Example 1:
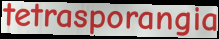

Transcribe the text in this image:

tetrasporangia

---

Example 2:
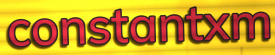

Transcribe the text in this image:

constantxm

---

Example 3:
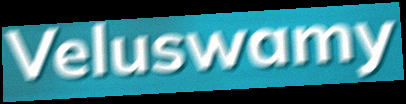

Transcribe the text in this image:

Veluswamy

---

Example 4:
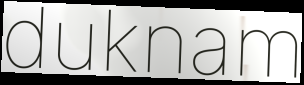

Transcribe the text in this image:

duknam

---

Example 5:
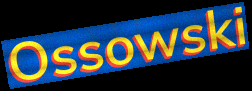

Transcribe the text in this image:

Ossowski